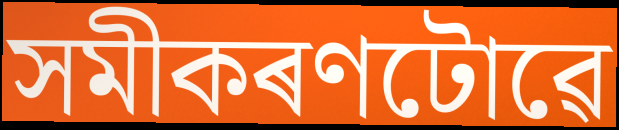
সমীকৰণটোৱে